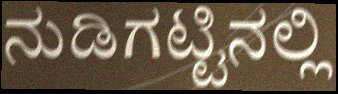
ನುಡಿಗಟ್ಟಿನಲ್ಲಿ